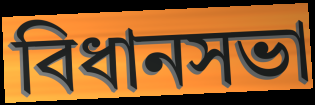
বিধানসভা